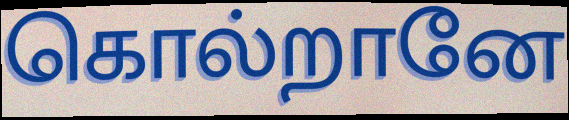
கொல்றானே